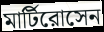
মার্টিরোসেন